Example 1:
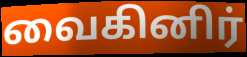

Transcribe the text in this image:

வைகினிர்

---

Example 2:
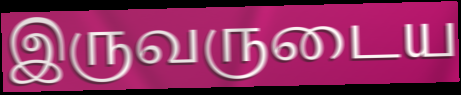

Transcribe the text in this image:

இருவருடைய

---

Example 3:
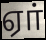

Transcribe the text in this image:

ஏர்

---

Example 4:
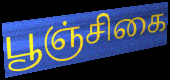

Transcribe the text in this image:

பூஞ்சிகை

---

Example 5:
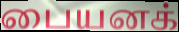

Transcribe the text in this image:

பையனக்